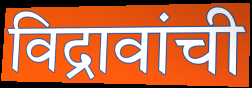
विद्रावांची